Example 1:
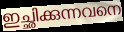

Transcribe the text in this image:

ഇച്ഛിക്കുന്നവനെ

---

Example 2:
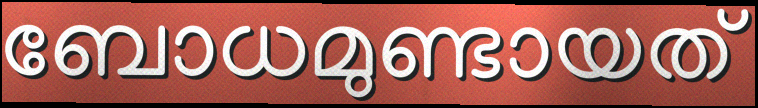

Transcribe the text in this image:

ബോധമുണ്ടായത്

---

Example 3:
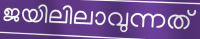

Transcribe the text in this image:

ജയിലിലാവുന്നത്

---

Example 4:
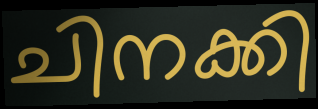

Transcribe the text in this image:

ചിനക്കി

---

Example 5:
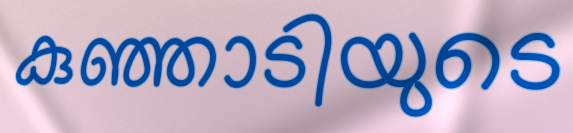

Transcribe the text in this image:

കുഞ്ഞാടിയുടെ